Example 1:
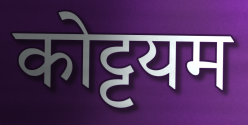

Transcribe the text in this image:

कोट्टयम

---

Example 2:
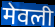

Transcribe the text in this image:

मेवली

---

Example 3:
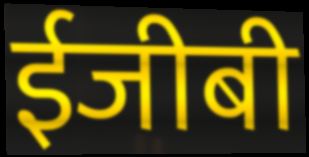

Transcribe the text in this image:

ईजीबी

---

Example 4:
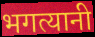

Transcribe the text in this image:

भगत्यानी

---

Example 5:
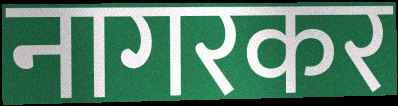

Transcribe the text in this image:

नागरकर